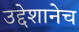
उद्देशानेच